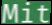
Mit